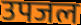
उपजल